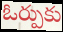
ఓర్పుకు